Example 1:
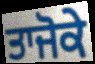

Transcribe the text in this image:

ਤਾਜੋਕੇ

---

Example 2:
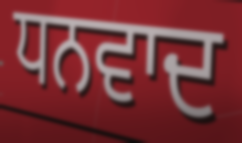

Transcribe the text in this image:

ਧਨਵਾਦ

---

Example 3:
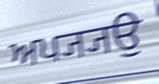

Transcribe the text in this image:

ਅਪ੍ਯ੍ਯਉ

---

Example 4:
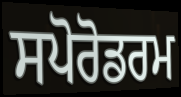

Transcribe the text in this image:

ਸਪੋਰੋਡਰਮ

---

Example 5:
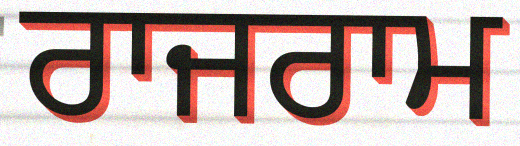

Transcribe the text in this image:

ਰਾਜਰਾਮ